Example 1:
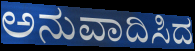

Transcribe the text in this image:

ಅನುವಾದಿಸಿದ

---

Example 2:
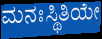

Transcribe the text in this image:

ಮನಃಸ್ಥಿತಿಯೇ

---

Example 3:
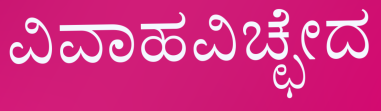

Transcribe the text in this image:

ವಿವಾಹವಿಚ್ಛೇದ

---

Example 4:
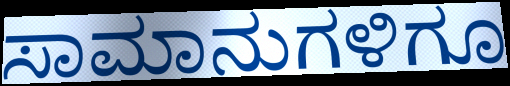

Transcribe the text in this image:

ಸಾಮಾನುಗಳಿಗೂ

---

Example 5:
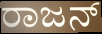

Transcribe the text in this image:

ರಾಜನ್